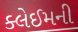
ક્લેઈમની